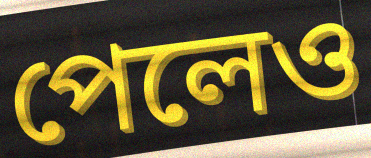
পেলেও